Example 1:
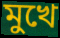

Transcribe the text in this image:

মুখে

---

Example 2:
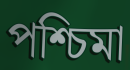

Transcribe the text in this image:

পশ্চিমা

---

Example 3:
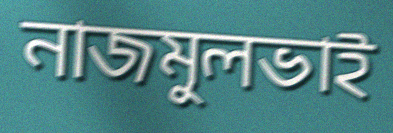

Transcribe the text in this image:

নাজমুলভাই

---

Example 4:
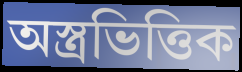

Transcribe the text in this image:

অস্ত্রভিত্তিক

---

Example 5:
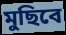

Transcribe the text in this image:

মুছিবে